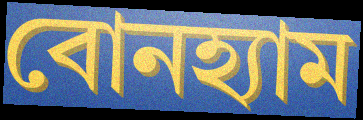
বোনহ্যাম